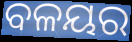
ବଳୟର